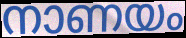
നാണയം